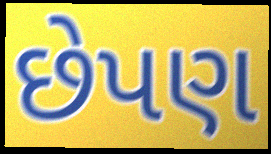
છેપણ